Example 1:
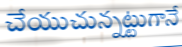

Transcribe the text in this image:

చేయుచున్నట్టుగానే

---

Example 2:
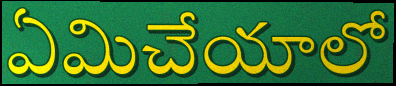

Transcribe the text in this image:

ఏమిచేయాలో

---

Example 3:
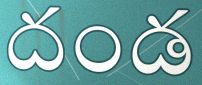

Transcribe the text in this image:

దండ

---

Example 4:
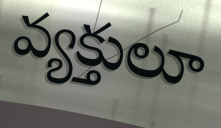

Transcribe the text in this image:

వ్యక్తులూ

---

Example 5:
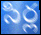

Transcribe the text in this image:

సిర్ల